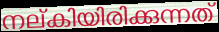
നല്‌കിയിരിക്കുന്നത്